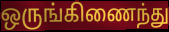
ஒருங்கிணைந்து